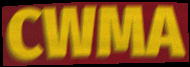
CWMA